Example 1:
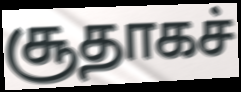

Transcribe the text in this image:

சூதாகச்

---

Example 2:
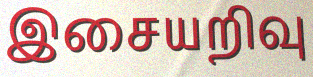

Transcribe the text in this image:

இசையறிவு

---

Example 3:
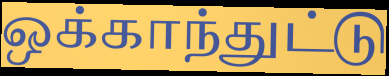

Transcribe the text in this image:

ஒக்காந்துட்டு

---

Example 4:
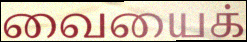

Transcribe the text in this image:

வையைக்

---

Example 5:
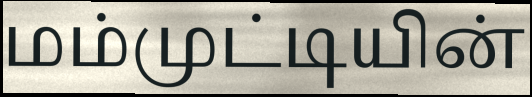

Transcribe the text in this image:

மம்முட்டியின்